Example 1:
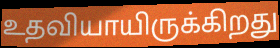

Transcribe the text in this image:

உதவியாயிருக்கிறது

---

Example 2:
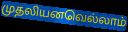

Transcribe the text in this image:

முதலியனவெல்லாம்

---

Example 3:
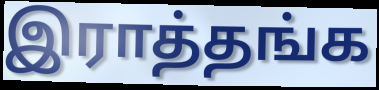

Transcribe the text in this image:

இராத்தங்க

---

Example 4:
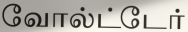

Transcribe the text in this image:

வோல்ட்டேர்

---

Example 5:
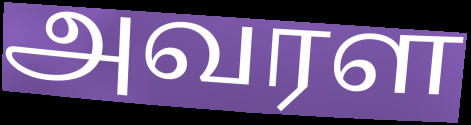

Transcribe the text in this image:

அவரள